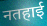
नतहाई